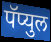
पॅप्युल